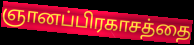
ஞானப்பிரகாசத்தை